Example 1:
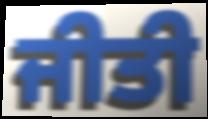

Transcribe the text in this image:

ਜੀਤੀ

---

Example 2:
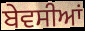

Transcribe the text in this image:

ਬੇਵਸੀਆਂ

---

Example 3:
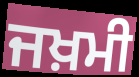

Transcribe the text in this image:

ਜਖ਼ਮੀ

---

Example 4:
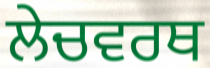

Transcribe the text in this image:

ਲੇਚਵਰਥ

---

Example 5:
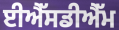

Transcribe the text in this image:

ਈਐੱਸਡੀਐੱਮ